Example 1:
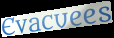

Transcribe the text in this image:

Evacuees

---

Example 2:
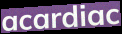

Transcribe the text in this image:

acardiac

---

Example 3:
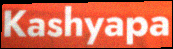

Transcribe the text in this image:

Kashyapa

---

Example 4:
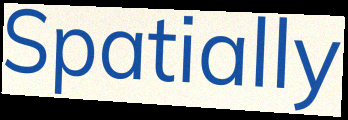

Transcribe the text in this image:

Spatially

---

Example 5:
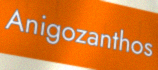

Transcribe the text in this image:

Anigozanthos